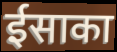
ईसाका